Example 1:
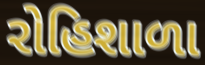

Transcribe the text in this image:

રોહિશાળા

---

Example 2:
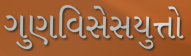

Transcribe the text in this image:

ગુણવિસેસયુત્તો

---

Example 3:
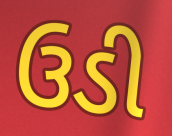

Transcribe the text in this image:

ઉડી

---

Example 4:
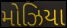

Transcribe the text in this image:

મોઝિયા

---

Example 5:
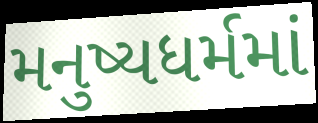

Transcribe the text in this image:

મનુષ્યધર્મમાં